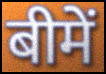
बीमें